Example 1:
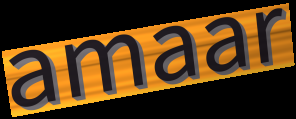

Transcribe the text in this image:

amaar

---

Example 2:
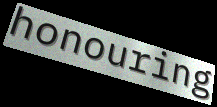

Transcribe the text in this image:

honouring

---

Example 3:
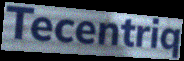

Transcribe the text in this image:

Tecentriq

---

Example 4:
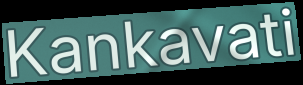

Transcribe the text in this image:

Kankavati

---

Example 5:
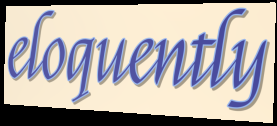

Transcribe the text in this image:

eloquently